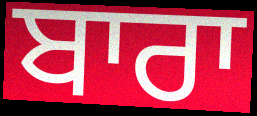
ਬਾਰਾ